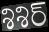
శిశిర్